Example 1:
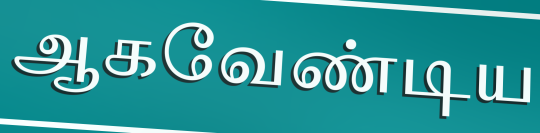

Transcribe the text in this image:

ஆகவேண்டிய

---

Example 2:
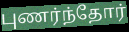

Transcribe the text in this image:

புணர்ந்தோர்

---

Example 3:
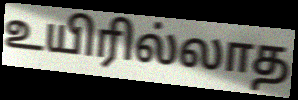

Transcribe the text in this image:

உயிரில்லாத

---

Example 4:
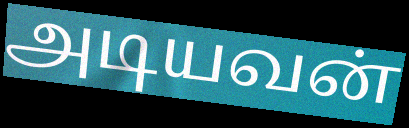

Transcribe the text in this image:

அடியவன்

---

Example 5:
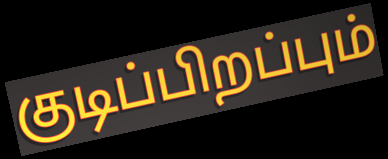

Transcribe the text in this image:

குடிப்பிறப்பும்